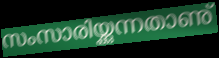
സംസാരിയ്ക്കുന്നതാണു്